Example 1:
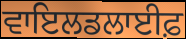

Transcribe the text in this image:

ਵਾਇਲਡਲਾਈਫ਼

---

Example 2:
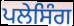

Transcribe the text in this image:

ਪਲੇਸਿੰਗ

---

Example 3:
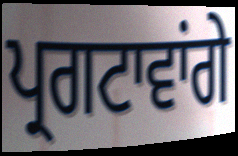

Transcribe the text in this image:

ਪ੍ਰਗਟਾਵਾਂਗੇ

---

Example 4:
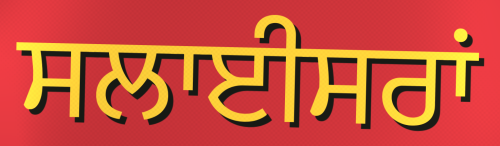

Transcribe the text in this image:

ਸਲਾਈਸਰਾਂ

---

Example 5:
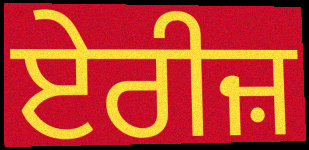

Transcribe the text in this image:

ਏਰੀਜ਼